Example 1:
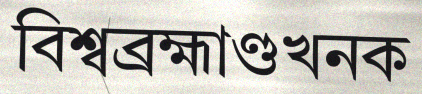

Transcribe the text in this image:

বিশ্বব্ৰহ্মাণ্ডখনক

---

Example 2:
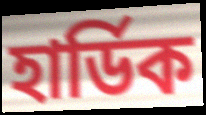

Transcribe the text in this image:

হাৰ্ডিক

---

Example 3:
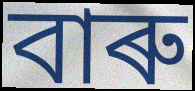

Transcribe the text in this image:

বাৰু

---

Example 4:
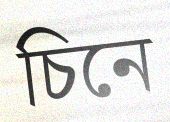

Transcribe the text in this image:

চিনে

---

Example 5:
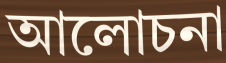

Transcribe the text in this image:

আলোচনা